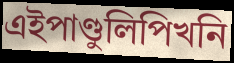
এইপাণ্ডুলিপিখনি